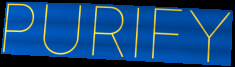
PURIFY